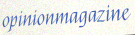
opinionmagazine